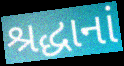
શ્રદ્ધાનાં